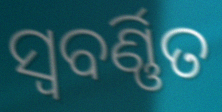
ସ୍ୱବର୍ଣ୍ଣିତ